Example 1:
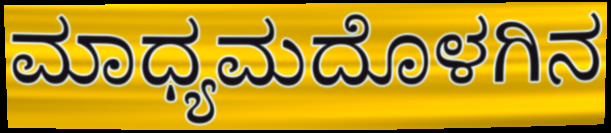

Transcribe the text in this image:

ಮಾಧ್ಯಮದೊಳಗಿನ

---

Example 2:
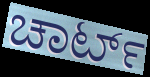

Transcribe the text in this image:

ಚಾರ್ಟ್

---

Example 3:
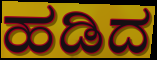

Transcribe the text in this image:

ಹಡಿದ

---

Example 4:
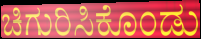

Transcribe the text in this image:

ಚಿಗುರಿಸಿಕೊಂಡು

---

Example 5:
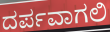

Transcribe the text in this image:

ದರ್ಪವಾಗಲಿ